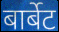
बार्बेट